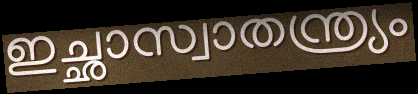
ഇച്ഛാസ്വാതന്ത്ര്യം